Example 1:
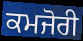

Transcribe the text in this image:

ਕਮਜੋਰੀ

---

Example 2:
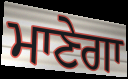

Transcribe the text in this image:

ਮਾਣੇਗਾ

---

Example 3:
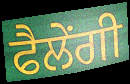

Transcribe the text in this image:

ਫੈਲੇਂਗੀ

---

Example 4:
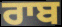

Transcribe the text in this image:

ਰਾਬ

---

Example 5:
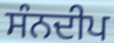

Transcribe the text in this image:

ਸੰਨਦੀਪ